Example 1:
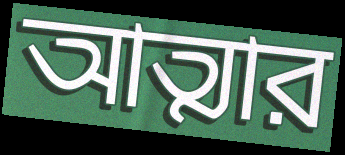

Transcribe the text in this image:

আত্মার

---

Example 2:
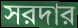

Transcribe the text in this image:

সরদার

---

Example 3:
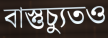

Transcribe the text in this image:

বাস্তুচ্যুতও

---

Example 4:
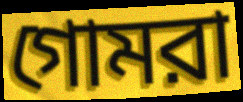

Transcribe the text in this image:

গোমরা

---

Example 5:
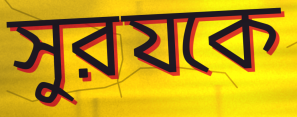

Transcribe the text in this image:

সুরযকে